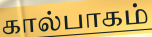
கால்பாகம்